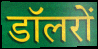
डॉलरों